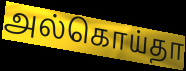
அல்கொய்தா